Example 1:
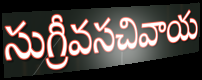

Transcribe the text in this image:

సుగ్రీవసచివాయ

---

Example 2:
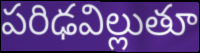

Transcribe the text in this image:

పరిఢవిల్లుతూ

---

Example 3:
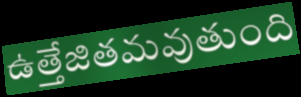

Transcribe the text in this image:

ఉత్తేజితమవుతుంది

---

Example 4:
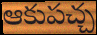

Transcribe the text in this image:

ఆకుపచ్చ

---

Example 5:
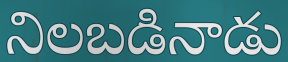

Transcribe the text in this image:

నిలబడినాడు